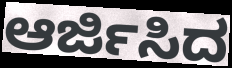
ಆರ್ಜಿಸಿದ